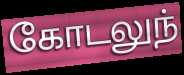
கோடலுந்